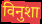
विनुशा